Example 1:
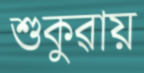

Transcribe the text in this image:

শুকুৱায়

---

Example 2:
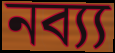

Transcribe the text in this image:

নব্য্য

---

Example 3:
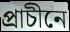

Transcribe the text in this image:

প্ৰাচীনে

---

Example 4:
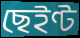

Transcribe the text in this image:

ছেইণ্ট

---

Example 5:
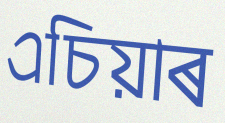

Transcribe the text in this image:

এচিয়াৰ